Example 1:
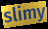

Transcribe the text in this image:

slimy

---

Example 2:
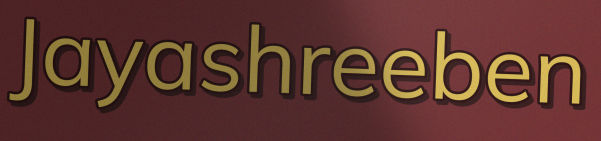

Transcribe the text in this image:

Jayashreeben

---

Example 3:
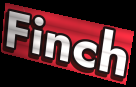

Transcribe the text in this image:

Finch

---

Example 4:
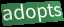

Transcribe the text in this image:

adopts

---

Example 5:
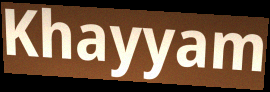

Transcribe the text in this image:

Khayyam